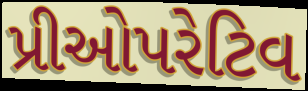
પ્રીઓપરેટિવ